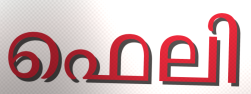
ഫെലി